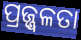
ପ୍ରଜ୍ଜ୍ୱଳତା